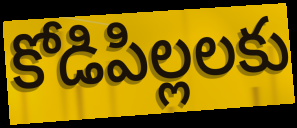
కోడిపిల్లలకు